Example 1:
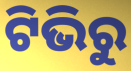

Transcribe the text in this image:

ଟିଭିରୁ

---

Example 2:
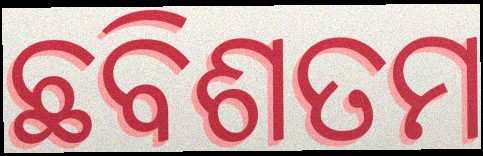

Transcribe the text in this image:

ଛବିଶତମ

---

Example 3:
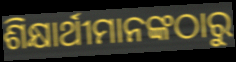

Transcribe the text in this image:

ଶିକ୍ଷାର୍ଥୀମାନଙ୍କଠାରୁ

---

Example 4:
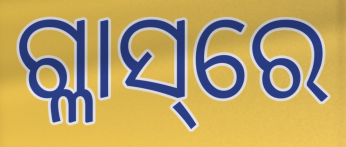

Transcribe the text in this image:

ଗ୍ଳାସ୍‌ରେ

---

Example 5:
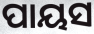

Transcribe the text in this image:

ପାୟସ